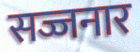
सज्जनार